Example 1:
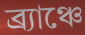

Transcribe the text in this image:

ব্র্যাঞ্চে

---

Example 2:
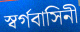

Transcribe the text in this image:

স্বর্গবাসিনী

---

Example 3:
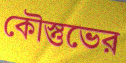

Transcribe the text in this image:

কৌস্তুভের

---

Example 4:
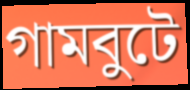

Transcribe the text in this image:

গামবুটে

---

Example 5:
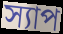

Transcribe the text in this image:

স্যাপ